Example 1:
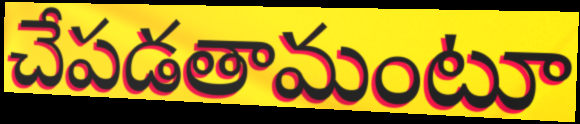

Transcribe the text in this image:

చేపడతామంటూ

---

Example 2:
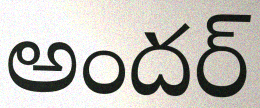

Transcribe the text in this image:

అందర్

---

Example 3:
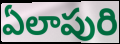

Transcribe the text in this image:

ఏలాపురి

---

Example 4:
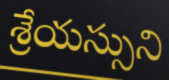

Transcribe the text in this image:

శ్రేయస్సుని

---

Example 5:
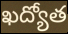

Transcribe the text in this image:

ఖద్యోత